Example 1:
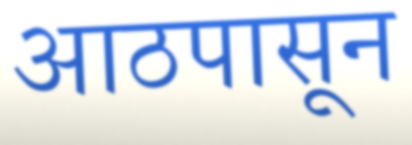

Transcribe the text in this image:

आठपासून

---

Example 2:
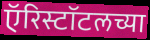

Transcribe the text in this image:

ऍरिस्टॉटलच्या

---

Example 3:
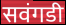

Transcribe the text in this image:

सवंगडी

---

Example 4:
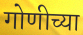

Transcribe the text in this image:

गोणीच्या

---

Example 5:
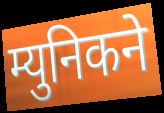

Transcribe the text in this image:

म्युनिकने